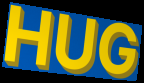
HUG